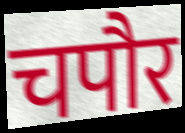
चपौर